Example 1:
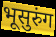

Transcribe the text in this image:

भूसुरुंग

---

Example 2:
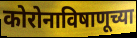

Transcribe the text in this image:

कोरोनाविषाणूच्या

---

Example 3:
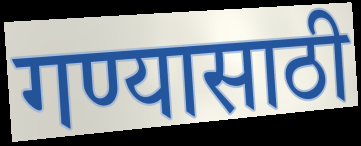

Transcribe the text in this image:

गण्यासाठी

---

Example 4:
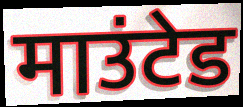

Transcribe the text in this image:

माउंटेड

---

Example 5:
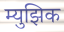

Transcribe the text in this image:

म्युझिक